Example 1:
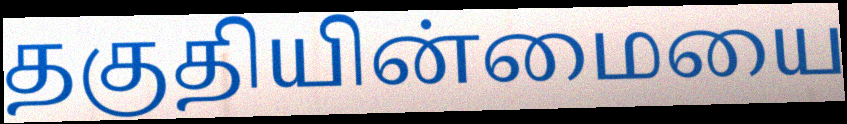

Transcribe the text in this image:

தகுதியின்மையை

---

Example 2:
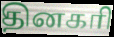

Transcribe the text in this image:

தினகரி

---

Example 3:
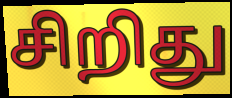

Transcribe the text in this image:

சிறிது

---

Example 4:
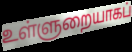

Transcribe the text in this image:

உள்ளுறையாகப்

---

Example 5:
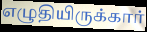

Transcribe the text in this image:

எழுதியிருக்கார்